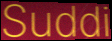
Suddi